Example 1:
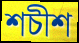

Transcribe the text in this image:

শচীশ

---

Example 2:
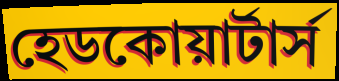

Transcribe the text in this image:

হেডকোয়ার্টার্স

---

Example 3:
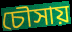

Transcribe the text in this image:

চৌসায়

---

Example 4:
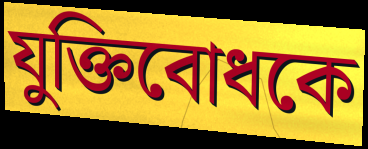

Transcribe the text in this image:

যুক্তিবোধকে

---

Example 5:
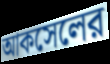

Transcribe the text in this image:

আকসেলের